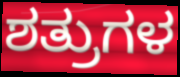
ಶತ್ರುಗಳ